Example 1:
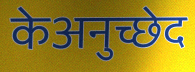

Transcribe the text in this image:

केअनुच्छेद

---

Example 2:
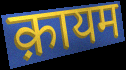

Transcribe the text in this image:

क़ायम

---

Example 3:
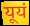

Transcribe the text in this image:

यूयं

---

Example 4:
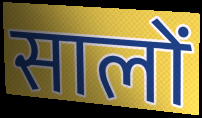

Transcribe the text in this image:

सालों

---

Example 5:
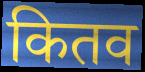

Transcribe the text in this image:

कितव